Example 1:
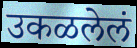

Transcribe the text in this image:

उकळलेलं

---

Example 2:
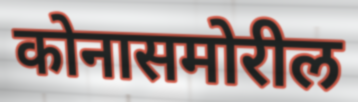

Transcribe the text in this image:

कोनासमोरील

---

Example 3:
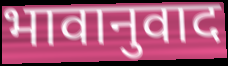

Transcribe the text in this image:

भावानुवाद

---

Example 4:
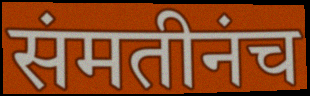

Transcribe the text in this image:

संमतीनंच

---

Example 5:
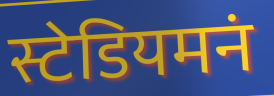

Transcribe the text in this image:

स्टेडियमनं